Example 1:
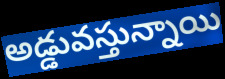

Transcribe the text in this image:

అడ్డువస్తున్నాయి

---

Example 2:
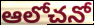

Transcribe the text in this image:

ఆలోచనో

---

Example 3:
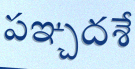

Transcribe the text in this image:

పఞ్చదశే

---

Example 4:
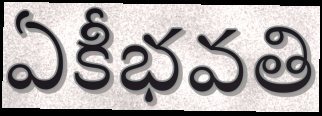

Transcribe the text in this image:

ఏకీభవతి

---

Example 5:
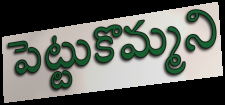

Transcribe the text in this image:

పెట్టుకొమ్మని